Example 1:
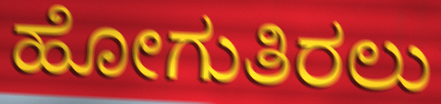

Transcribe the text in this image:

ಹೋಗುತಿರಲು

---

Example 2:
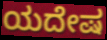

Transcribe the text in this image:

ಯದೇಷ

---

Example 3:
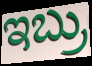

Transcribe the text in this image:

ಇಬ್ರು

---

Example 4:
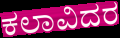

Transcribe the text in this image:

ಕಲಾವಿದರ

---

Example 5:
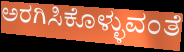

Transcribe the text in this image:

ಅರಗಿಸಿಕೊಳ್ಳುವಂತೆ